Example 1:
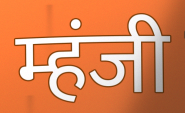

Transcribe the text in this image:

म्हंजी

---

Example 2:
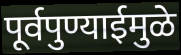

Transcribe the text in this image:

पूर्वपुण्याईमुळे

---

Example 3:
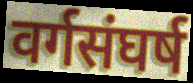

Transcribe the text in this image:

वर्गसंघर्ष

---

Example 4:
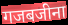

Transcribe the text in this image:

गजबजीना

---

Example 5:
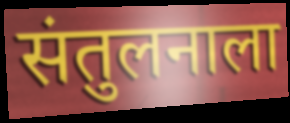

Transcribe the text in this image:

संतुलनाला